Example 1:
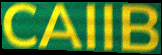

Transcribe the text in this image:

CAIIB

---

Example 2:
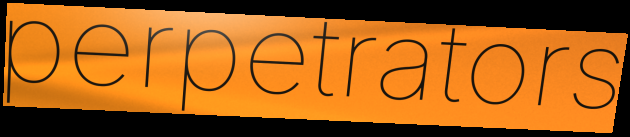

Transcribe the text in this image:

perpetrators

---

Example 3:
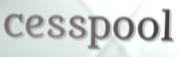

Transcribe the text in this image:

cesspool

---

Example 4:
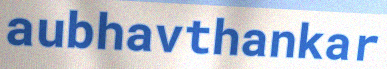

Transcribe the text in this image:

aubhavthankar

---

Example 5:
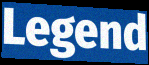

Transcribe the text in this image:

Legend